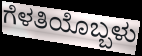
ಗೆಳತಿಯೊಬ್ಬಳು